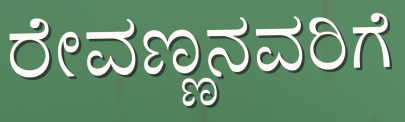
ರೇವಣ್ಣನವರಿಗೆ